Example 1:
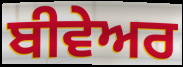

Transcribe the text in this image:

ਬੀਵੇਅਰ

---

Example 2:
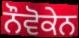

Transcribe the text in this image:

ਨੌਵੋਕੇਨ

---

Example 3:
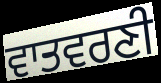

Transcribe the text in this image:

ਵਾਤਵਰਣੀ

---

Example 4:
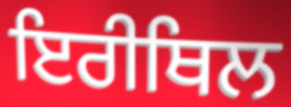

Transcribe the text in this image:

ਇਰੀਥਿਲ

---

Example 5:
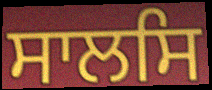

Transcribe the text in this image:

ਸਾਲਸਿ